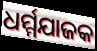
ଧର୍ମ୍ମଯାଜକ